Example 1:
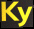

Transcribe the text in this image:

Ky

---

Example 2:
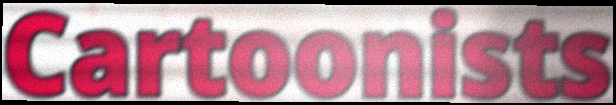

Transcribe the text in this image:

Cartoonists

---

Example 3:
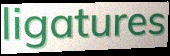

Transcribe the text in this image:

ligatures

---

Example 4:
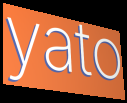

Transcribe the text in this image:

yato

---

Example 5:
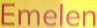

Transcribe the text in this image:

Emelen